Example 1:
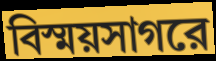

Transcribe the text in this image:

বিস্ময়সাগরে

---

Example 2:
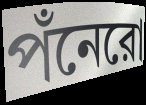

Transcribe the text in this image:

পঁনেরো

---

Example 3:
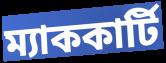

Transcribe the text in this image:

ম্যাককার্টি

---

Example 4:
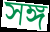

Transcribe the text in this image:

সঙ্গ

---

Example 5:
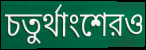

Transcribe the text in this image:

চতুর্থাংশেরও